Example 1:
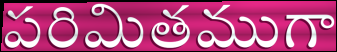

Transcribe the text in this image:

పరిమితముగా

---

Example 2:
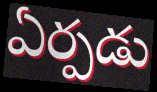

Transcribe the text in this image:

ఏర్పడు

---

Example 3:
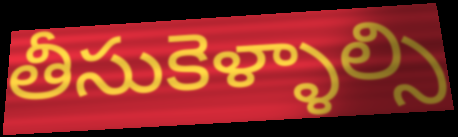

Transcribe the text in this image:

తీసుకెళ్ళాల్సి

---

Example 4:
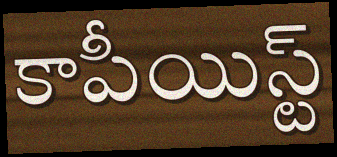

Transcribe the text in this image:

కాపీయిస్ట్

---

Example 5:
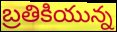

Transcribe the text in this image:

బ్రతికియున్న